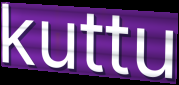
kuttu